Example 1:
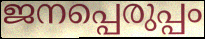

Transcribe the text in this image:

ജനപ്പെരുപ്പം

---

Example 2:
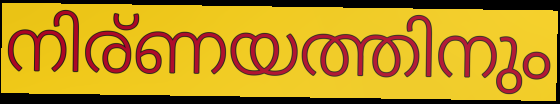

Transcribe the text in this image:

നിര്ണയത്തിനും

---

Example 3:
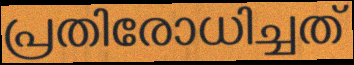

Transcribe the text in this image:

പ്രതിരോധിച്ചത്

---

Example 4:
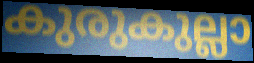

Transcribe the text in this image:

കുരുകുല്ലാ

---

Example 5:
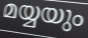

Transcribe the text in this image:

മയ്യയും